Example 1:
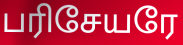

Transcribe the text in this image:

பரிசேயரே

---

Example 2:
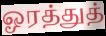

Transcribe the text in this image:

ஓரத்துத்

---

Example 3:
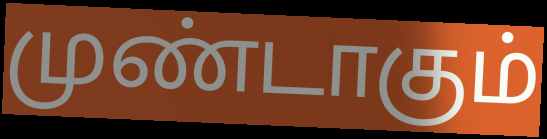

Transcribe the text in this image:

முண்டாகும்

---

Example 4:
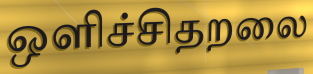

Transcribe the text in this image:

ஒளிச்சிதறலை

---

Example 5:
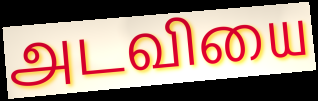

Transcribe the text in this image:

அடவியை